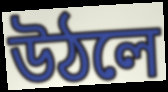
উঠলে